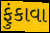
ફુંકાવા